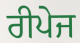
ਰੀਪੇਜ